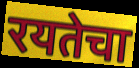
रयतेचा